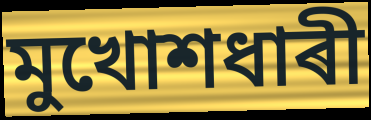
মুখোশধাৰী